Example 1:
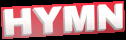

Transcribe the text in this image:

HYMN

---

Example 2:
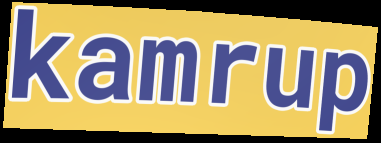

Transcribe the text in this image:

kamrup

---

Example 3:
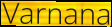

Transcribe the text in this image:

Varnana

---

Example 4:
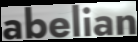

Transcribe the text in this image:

abelian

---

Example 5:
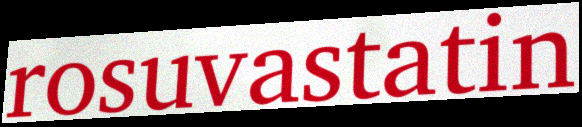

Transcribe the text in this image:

rosuvastatin